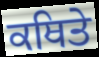
ਕਥਿਤੇ